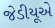
જેડીયૂએ